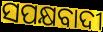
ସପକ୍ଷବାଦୀ